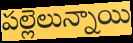
పల్లెలున్నాయి